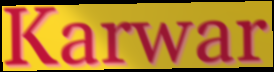
Karwar